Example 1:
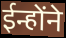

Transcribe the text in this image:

ईन्होंने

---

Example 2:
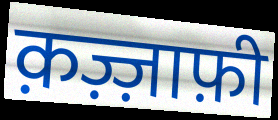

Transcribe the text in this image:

क़ज़्ज़ाफ़ी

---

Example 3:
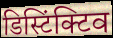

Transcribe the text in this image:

डिस्टिंक्टिव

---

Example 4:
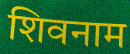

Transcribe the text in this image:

शिवनाम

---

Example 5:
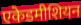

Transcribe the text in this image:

एकेडमीशियन